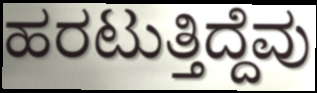
ಹರಟುತ್ತಿದ್ದೆವು